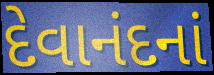
દેવાનંદનાં